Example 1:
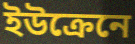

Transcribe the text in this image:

ইউক্রেনে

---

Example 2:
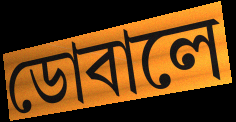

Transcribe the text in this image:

ডোবালে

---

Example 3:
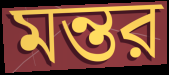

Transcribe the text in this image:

মন্তর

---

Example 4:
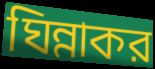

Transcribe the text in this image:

ঘিন্নাকর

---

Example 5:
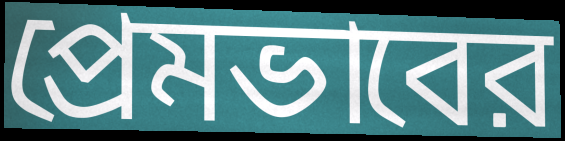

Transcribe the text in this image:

প্রেমভাবের